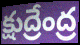
క్షుద్రేంద్ర